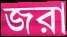
জরা